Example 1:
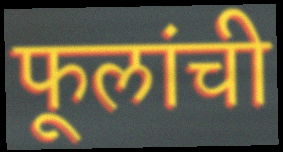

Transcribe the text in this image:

फूलांची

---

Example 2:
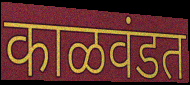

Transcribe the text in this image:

काळवंडत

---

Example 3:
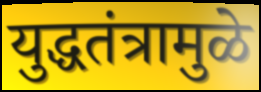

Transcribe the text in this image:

युद्धतंत्रामुळे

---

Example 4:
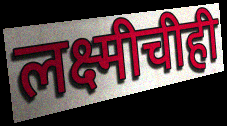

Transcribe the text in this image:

लक्ष्मीचीही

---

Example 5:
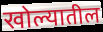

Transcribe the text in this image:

खोल्यातील